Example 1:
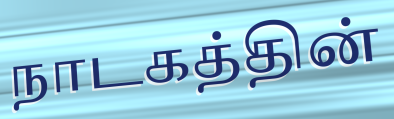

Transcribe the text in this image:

நாடகத்தின்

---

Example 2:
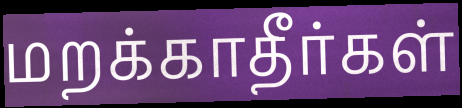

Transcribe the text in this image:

மறக்காதீர்கள்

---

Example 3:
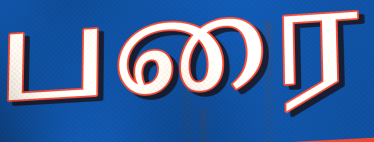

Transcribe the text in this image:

பரை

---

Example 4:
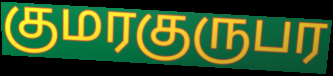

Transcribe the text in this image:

குமரகுருபர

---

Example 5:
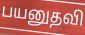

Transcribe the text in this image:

பயனுதவி